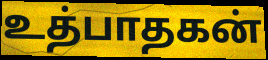
உத்பாதகன்